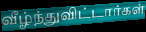
வீழ்ந்துவிட்டார்கள்